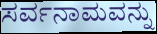
ಸರ್ವನಾಮವನ್ನು